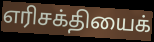
எரிசக்தியைக்